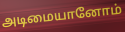
அடிமையானோம்